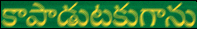
కాపాడుటకుగాను